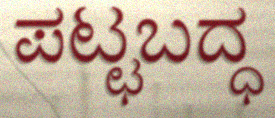
ಪಟ್ಟಬದ್ಧ